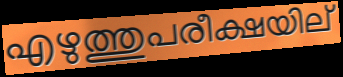
എഴുത്തുപരീക്ഷയില്